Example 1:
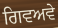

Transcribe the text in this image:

ਗਿਵਅਵੇ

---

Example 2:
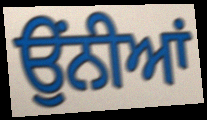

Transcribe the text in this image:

ਉੰਨੀਆਂ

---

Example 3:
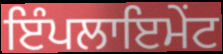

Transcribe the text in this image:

ਇੰਪਲਾਇਮੇਂਟ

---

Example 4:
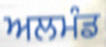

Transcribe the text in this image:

ਅਲਮੰਡ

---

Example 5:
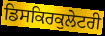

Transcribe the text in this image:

ਡਿਸਕਿਰਕੁਲੇਟਰੀ